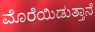
ಮೊರೆಯಿಡುತ್ತಾನೆ